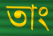
তাং